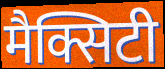
मैक्सिटी